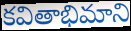
కవితాభిమాని